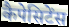
कैपेसिटेंस